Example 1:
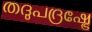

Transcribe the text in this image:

തദുപദ്രഷ്ട്രേ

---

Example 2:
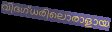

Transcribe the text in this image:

വിദഗ്ധരിലൊരാളായ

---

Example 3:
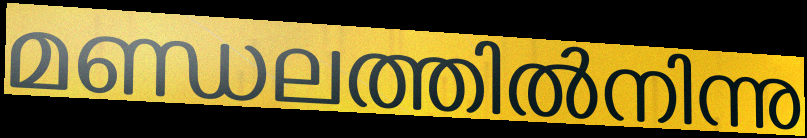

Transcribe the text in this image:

മണ്ഡലത്തിൽനിന്നു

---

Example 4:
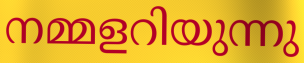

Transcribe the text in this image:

നമ്മളറിയുന്നു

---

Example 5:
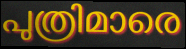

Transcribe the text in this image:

പുത്രിമാരെ